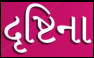
દૃષ્ટિના